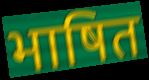
भाषित